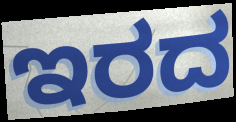
ಇರದ